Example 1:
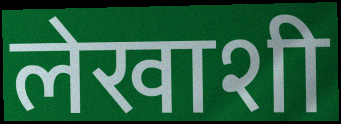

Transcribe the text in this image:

लेखाशी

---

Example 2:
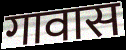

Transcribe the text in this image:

गावास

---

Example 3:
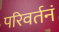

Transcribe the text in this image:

परिवर्तनं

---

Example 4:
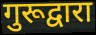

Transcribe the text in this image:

गुरूद्वारा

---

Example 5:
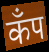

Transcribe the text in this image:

कॅंप